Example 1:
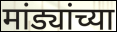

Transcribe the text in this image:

मांड्यांच्या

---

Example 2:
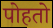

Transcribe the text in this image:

पोहतो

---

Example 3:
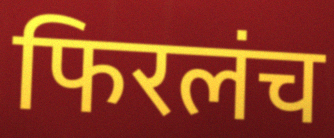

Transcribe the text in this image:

फिरलंच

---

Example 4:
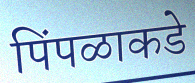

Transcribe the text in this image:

पिंपळाकडे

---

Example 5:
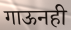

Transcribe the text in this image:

गाऊनही